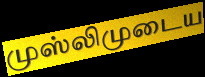
முஸ்லிமுடைய